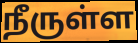
நீருள்ள